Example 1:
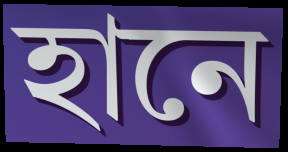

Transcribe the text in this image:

হানে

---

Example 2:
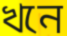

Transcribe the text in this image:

খনে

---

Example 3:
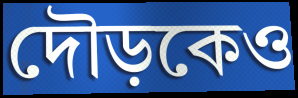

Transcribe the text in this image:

দৌড়কেও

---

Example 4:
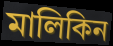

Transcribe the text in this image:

মালিকিন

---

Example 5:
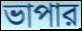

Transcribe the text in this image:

ভাপার